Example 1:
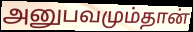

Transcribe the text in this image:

அனுபவமும்தான்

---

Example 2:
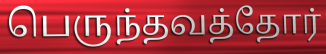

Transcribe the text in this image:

பெருந்தவத்தோர்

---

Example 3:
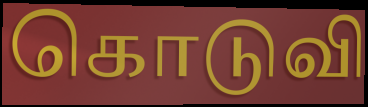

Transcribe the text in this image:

கொடுவி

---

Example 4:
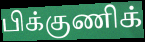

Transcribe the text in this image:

பிக்குணிக்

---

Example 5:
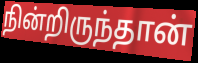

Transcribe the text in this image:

நின்றிருந்தான்